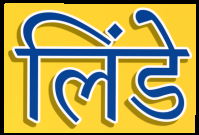
लिंडे